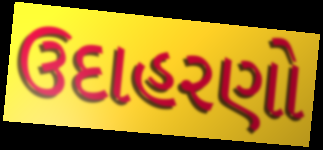
ઉદાહરણો